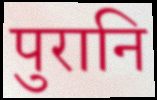
पुरानि